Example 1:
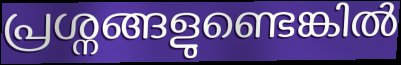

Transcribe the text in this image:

പ്രശ്നങ്ങളുണ്ടെങ്കിൽ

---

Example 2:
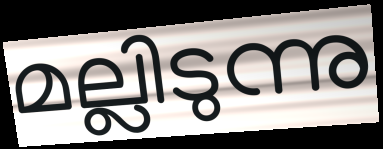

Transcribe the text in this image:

മല്ലിടുന്നു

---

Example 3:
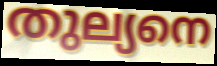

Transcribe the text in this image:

തുല്യനെ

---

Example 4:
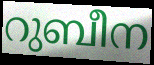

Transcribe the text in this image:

റുബീന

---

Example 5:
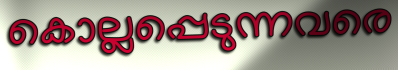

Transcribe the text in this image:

കൊല്ലപ്പെടുന്നവരെ